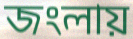
জংলায়